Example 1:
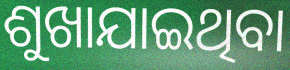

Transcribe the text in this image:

ଶୁଖାଯାଇଥିବା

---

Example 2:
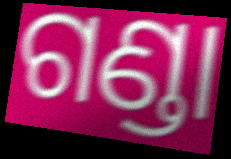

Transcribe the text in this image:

ଗଣ୍ଡା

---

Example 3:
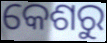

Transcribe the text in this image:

କେଶରୁ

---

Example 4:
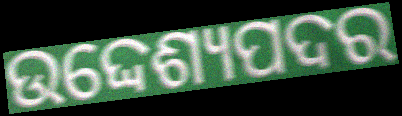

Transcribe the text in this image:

ଉଦ୍ଦେଶ୍ୟପଦର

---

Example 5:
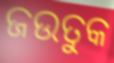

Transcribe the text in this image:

ଜଉତୁକ